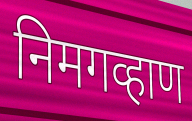
निमगव्हाण